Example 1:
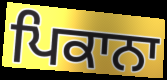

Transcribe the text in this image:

ਪਿਕਾਨਾ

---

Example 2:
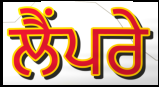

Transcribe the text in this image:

ਲੈਂਪਰੇ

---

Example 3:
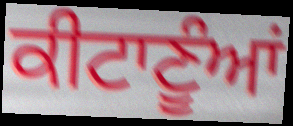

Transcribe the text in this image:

ਕੀਟਾਣੂੰਆਂ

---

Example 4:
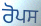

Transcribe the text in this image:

ਰੋਪਸ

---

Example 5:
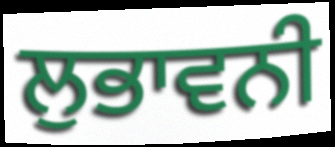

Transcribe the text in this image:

ਲੁਭਾਵਨੀ